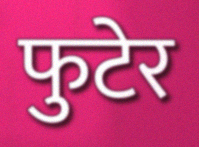
फुटेर